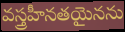
వస్త్రహీనతయైనను